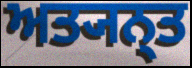
ਅਤ੍ਯਨ੍ਤ